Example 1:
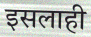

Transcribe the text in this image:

इसलाही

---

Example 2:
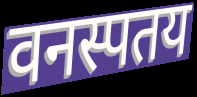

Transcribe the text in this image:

वनस्पतय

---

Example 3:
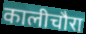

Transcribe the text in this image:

कालीचौरा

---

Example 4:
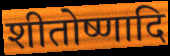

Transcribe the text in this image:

शीतोष्णादि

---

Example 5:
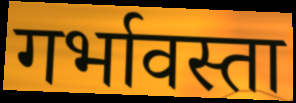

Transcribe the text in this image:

गर्भावस्ता